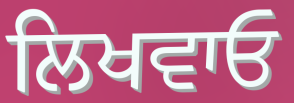
ਲਿਖਵਾਓ